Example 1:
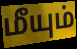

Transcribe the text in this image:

மீயும்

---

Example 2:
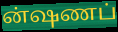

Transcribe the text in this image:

ன்ஷணப்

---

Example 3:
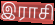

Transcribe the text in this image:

இராசி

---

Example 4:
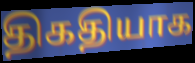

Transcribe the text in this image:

திகதியாக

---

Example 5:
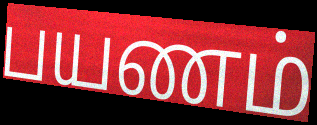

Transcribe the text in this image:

பயணம்